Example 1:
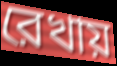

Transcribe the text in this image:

রেখায়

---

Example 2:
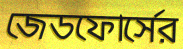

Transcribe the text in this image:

জেডফোর্সের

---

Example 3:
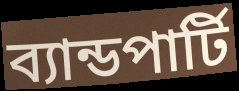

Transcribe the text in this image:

ব্যান্ডপার্টি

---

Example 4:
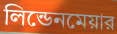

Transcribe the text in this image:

লিন্ডেনমেয়ার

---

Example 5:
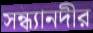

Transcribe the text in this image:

সন্ধ্যানদীর